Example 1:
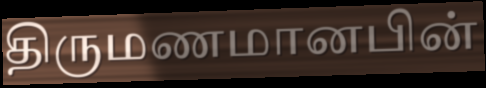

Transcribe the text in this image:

திருமணமானபின்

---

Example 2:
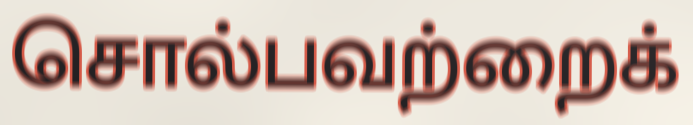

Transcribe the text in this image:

சொல்பவற்றைக்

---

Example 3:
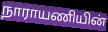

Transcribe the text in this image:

நாராயணியின்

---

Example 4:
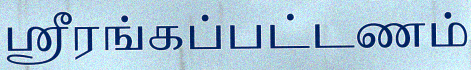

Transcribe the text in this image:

ஸ்ரீரங்கப்பட்டணம்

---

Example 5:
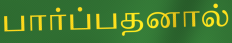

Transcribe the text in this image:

பார்ப்பதனால்